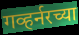
गव्हर्नरच्या